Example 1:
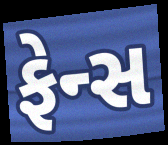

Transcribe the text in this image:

ફેન્સ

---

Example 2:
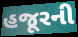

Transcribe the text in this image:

હજૂરની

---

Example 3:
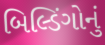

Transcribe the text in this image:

બિલ્ડિંગોનું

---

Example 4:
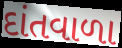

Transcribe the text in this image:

દાંતવાળા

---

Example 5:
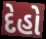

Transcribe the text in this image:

દેહો